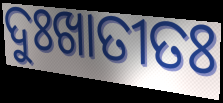
ଦୁଃଖାତୀତଃ